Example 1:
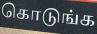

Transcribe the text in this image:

கொடுங்க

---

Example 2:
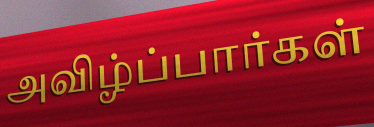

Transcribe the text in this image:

அவிழ்ப்பார்கள்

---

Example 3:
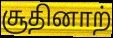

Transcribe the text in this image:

சூதினாற்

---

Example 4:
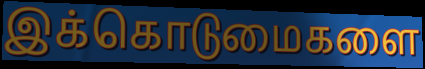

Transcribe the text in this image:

இக்கொடுமைகளை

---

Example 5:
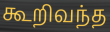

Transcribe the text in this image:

கூறிவந்த